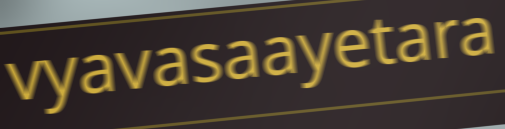
vyavasaayetara